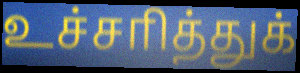
உச்சரித்துக்